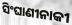
ସିଂଘାଣୀନାକୀ